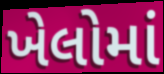
ખેલોમાં